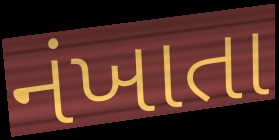
નંખાતા